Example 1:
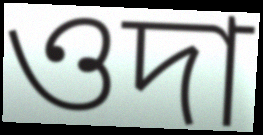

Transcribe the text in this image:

ওদা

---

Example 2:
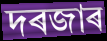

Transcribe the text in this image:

দৰজাৰ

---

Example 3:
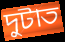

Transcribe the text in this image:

দুটাত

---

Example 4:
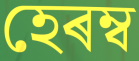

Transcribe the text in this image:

হেৰম্ব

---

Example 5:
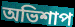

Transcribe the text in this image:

অভিশাপ